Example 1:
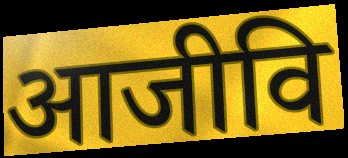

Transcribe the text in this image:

आजीवि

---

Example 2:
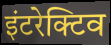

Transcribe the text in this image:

इंटरेक्टिव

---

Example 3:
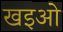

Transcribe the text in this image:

खइओ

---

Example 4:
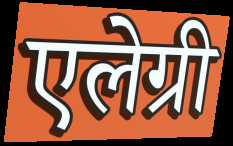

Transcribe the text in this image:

एलेग्री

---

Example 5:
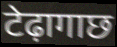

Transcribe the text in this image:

टेढ़ागाछ